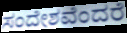
ಸಂದೇಶವೆಂದರೆ